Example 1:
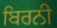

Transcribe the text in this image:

ਬਿਰਨੀ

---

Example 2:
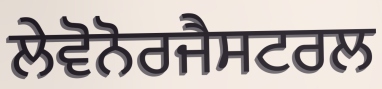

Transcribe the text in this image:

ਲੇਵੋਨੋਰਜੈਸਟਰਲ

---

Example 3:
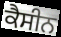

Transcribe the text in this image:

ਕੈਸੀਨ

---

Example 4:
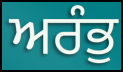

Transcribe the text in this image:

ਅਰੰਭੁ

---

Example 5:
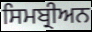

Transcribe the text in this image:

ਸਿਮਬ੍ਰੀਅਨ